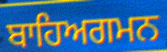
ਬਾਹਿਅਗਮਨ